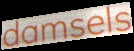
damsels